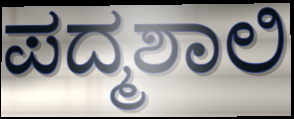
ಪದ್ಮಶಾಲಿ